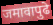
जमावापुढे